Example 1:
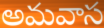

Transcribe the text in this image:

అమవాస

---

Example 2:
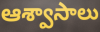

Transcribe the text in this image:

ఆశ్వాసాలు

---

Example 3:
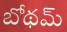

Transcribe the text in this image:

బోథమ్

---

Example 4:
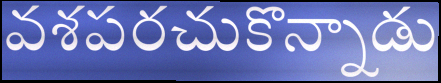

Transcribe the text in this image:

వశపరచుకొన్నాడు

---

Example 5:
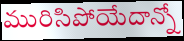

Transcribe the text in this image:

మురిసిపోయేదాన్నో